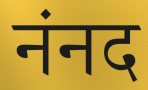
नंनद